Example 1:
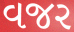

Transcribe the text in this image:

વજર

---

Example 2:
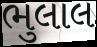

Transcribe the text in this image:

ભુલાલ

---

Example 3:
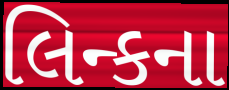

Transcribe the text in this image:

લિન્કના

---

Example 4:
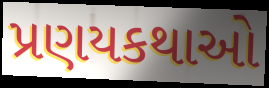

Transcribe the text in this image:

પ્રણયકથાઓ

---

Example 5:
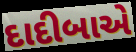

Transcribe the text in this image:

દાદીબાએ